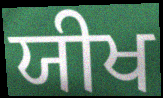
ਯੀਖ